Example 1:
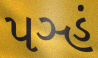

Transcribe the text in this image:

પઞ્હં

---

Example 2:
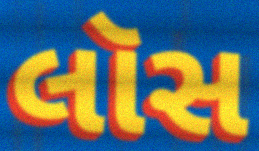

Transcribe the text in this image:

લૉસ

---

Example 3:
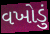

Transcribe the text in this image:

વખોડું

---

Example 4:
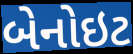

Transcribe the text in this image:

બેનોઇટ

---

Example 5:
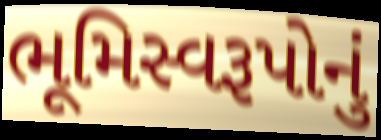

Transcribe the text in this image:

ભૂમિસ્વરૂપોનું